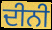
ਦੀਨੀ